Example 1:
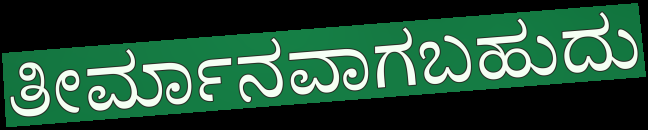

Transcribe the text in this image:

ತೀರ್ಮಾನವಾಗಬಹುದು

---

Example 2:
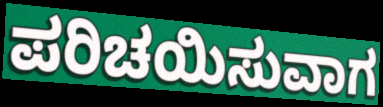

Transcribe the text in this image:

ಪರಿಚಯಿಸುವಾಗ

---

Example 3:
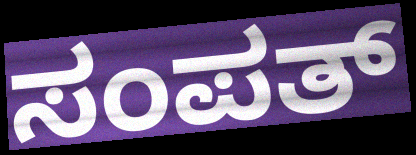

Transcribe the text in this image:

ಸಂಪತ್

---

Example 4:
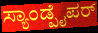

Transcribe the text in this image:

ಸ್ಯಾಂಡ್ಪೈಪರ್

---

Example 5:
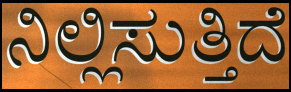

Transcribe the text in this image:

ನಿಲ್ಲಿಸುತ್ತಿದೆ